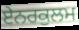
ਏਨਰਕੁਲਮ